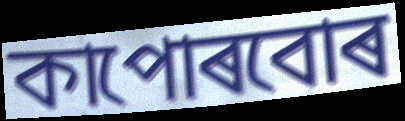
কাপোৰবোৰ